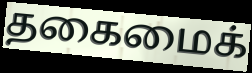
தகைமைக்